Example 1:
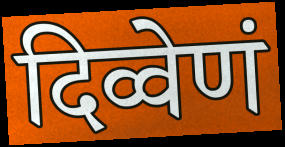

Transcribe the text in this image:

दिव्वेणं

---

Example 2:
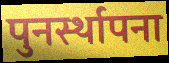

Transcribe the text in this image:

पुनर्स्थापना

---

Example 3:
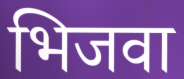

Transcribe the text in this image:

भिजवा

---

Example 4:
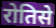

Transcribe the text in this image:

रोतिसे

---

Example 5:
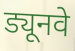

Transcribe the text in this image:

ड्यूनवे